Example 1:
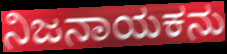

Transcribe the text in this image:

ನಿಜನಾಯಕನು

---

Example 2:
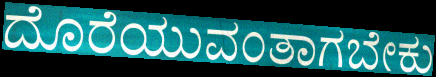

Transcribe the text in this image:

ದೊರೆಯುವಂತಾಗಬೇಕು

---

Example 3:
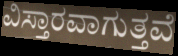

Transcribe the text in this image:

ವಿಸ್ತಾರವಾಗುತ್ತವೆ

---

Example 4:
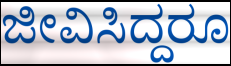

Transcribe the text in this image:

ಜೀವಿಸಿದ್ದರೂ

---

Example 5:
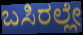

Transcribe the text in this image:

ಬಸಿರಲ್ಲೇ